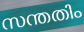
സന്തതിം